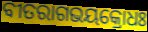
ବୀତରାଗଭୟକ୍ରୋଧଃ